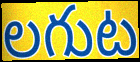
లగుట